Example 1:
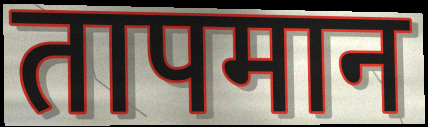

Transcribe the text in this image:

तापमान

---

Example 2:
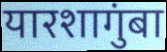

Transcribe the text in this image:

यारशागुंबा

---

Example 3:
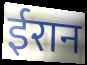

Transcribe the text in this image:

ईरान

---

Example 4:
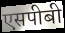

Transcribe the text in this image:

एसपीबी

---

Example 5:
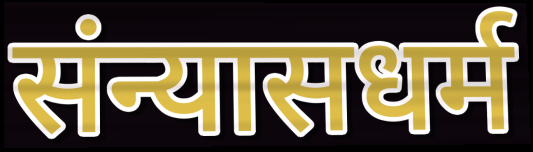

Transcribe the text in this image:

संन्यासधर्म